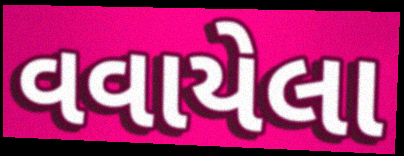
વવાયેલા